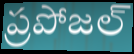
ప్రపోజల్